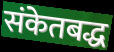
संकेतबद्ध